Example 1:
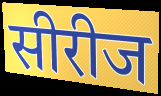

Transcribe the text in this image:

सीरीज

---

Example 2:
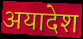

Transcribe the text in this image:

अयादेश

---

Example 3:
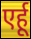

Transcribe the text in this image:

एर्हू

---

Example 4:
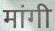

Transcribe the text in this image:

मांगी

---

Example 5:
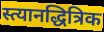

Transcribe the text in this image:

स्त्यानद्धित्रिक